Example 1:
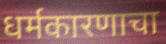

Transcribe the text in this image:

धर्मकारणाचा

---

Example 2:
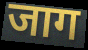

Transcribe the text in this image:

जाग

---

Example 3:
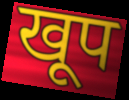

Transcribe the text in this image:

खूप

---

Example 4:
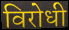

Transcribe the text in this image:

विरोधी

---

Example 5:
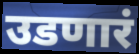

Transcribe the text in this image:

उडणारं